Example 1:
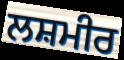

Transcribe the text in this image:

ਲਸ਼ਮੀਰ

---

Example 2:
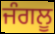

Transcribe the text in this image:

ਜੰਗਲੂ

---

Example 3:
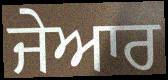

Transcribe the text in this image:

ਜੇਆਰ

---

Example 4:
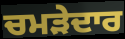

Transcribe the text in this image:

ਚਮੜੇਦਾਰ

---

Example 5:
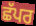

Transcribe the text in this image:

ਛੱਪਰ